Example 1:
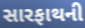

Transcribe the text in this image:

સારફાથની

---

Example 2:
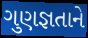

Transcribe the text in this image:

ગુણજ્ઞતાને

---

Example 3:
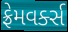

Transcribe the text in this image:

ફ્રેમવર્ક્સ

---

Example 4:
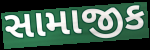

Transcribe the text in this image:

સામાજીક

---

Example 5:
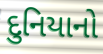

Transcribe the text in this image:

દુનિયાનો